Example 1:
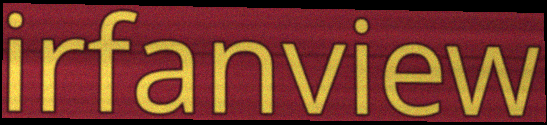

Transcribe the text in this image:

irfanview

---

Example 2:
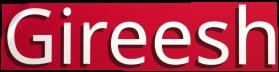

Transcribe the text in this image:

Gireesh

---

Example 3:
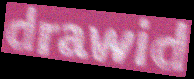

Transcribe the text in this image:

drawid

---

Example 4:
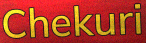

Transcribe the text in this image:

Chekuri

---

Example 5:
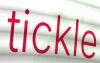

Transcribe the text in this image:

tickle